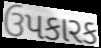
ઉપકારક